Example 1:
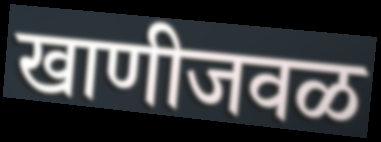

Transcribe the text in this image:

खाणीजवळ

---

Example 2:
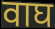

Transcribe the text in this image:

वाघ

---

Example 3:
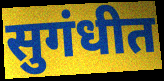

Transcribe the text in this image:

सुगंधीत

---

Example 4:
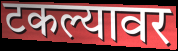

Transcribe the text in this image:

टकल्यावर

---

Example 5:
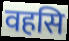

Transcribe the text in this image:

वहसि